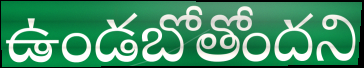
ఉండబోతోందని